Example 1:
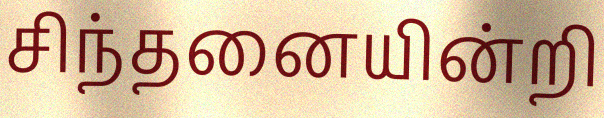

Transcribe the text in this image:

சிந்தனையின்றி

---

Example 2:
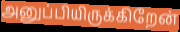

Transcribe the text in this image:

அனுப்பியிருக்கிறேன்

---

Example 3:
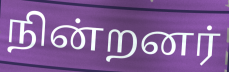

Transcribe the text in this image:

நின்றனர்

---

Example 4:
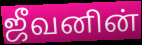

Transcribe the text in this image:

ஜீவனின்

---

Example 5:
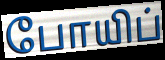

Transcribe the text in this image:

போயிப்